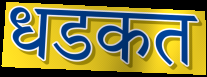
धडकत